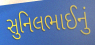
સુનિલભાઈનું